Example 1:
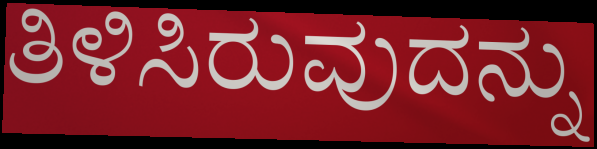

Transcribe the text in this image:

ತಿಳಿಸಿರುವುದನ್ನು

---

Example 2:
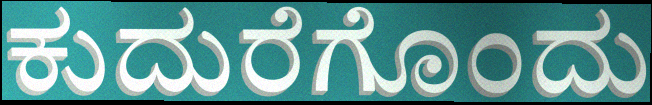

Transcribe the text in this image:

ಕುದುರೆಗೊಂದು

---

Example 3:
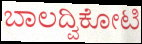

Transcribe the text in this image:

ಬಾಲದ್ವಿಕೋಟಿ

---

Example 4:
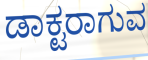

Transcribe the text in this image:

ಡಾಕ್ಟರಾಗುವ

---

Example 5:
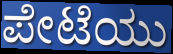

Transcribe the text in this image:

ಪೇಟೆಯು